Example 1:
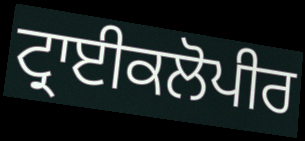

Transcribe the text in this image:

ਟ੍ਰਾਈਕਲੋਪੀਰ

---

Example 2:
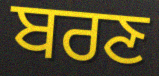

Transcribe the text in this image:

ਬਰਣ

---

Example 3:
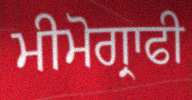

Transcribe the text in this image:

ਮੀਮੋਗ੍ਰਾਫੀ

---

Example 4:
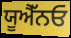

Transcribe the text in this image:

ਯੂਐੱਨਓ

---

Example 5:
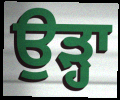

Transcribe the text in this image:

ਉੜ੍ਹਾ